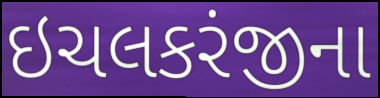
ઇચલકરંજીના